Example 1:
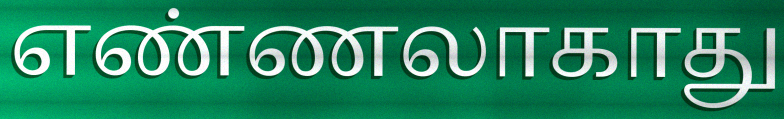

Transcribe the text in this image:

எண்ணலாகாது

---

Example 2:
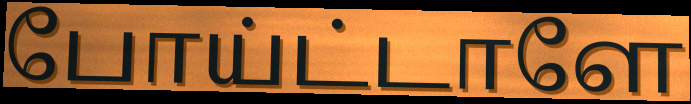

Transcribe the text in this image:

போய்ட்டாளே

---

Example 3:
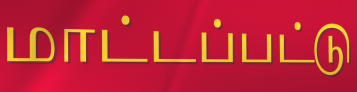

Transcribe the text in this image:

மாட்டப்பட்டு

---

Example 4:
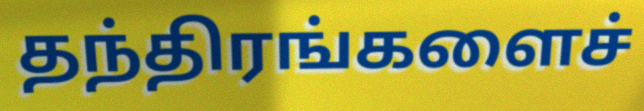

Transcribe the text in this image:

தந்திரங்களைச்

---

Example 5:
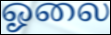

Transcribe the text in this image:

ஓலை